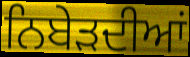
ਨਿਬੇੜਦੀਆਂ